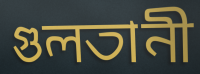
গুলতানী